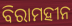
ବିରାମହୀନ